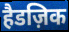
हैडज़िक